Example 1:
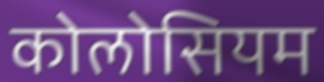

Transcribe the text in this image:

कोलोसियम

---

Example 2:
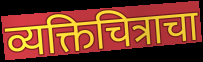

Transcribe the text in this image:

व्यक्तिचित्राचा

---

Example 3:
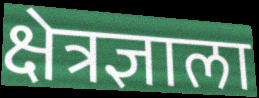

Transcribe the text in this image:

क्षेत्रज्ञाला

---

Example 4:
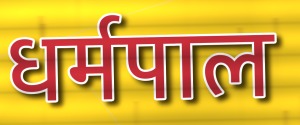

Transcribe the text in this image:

धर्मपाल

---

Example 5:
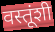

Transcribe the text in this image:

वस्तूंशी